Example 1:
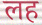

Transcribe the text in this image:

लह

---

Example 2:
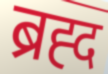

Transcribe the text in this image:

ब्रह्द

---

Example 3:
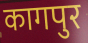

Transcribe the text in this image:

कागपुर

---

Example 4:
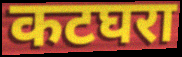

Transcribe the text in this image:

कटघरा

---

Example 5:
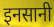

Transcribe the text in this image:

इनसानी